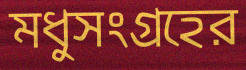
মধুসংগ্রহের